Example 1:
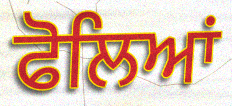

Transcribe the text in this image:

ਫੋਲਿਆਂ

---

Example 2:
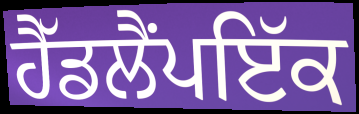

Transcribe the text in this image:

ਹੈੱਡਲੈਂਪਇੱਕ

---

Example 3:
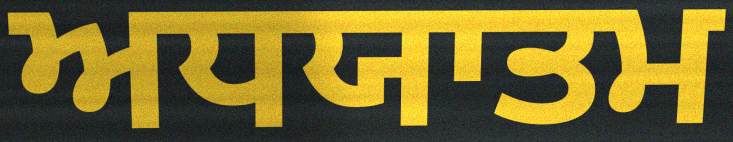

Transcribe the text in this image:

ਅਧਯਾਤਮ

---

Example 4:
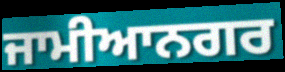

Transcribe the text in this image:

ਜਾਮੀਆਨਗਰ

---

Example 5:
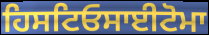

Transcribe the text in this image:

ਹਿਸਟਿਓਸਾਈਟੋਮਾ